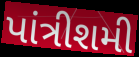
પાંત્રીશમી